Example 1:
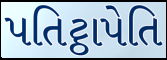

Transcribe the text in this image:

પતિટ્ઠાપેતિ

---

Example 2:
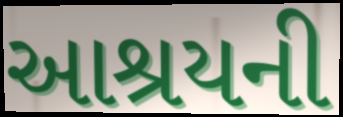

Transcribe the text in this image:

આશ્રયની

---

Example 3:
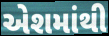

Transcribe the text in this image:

એશમાંથી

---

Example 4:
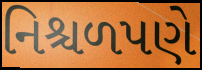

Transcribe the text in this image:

નિશ્ચળપણે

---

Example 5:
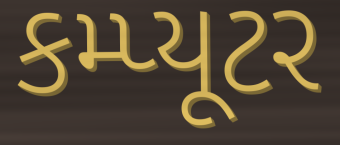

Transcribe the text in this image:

કમ્પ્યૂટર